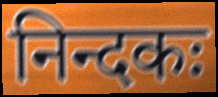
निन्दकः